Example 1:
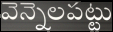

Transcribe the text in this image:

వెన్నెలపట్టు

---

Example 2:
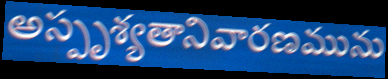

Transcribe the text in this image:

అస్పృశ్యతానివారణమును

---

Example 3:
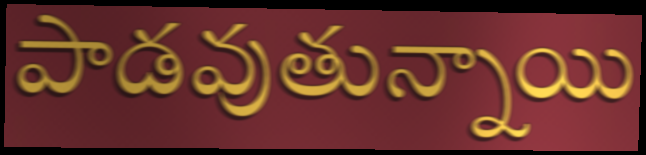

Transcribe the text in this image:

పాడవుతున్నాయి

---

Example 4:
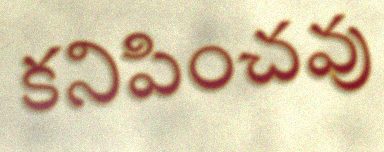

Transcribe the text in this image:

కనిపించవు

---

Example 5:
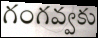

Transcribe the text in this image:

గంగవ్వకు